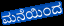
ಮನೆಯಿಂದ